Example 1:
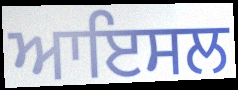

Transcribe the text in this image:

ਆਇਸਲ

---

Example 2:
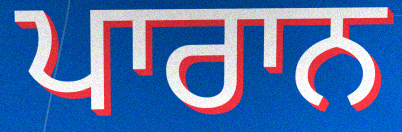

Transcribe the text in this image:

ਪਾਰਾਨ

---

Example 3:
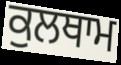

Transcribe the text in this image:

ਕੁਲਥਾਮ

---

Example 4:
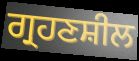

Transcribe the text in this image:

ਗ੍ਰਹਣਸ਼ੀਲ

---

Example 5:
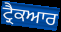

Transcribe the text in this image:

ਟ੍ਰੈਕਆਰ